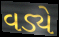
વડ્યે